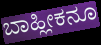
ಬಾಹ್ಲೀಕನೂ